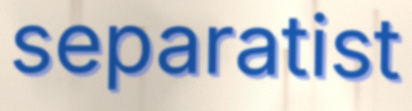
separatist